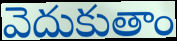
వెదుకుతాం